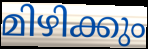
മിഴിക്കും